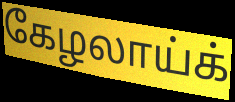
கேழலாய்க்